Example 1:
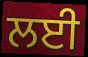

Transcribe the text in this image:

ਲਈ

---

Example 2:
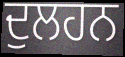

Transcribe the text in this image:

ਦੁਲਹਨ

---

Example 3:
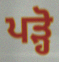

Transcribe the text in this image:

ਪੜ੍ਹੋ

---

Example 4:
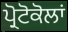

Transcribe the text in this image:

ਪ੍ਰੋਟੋਕੋਲਾਂ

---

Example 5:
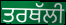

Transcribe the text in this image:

ਤਰਥੱਲੀ